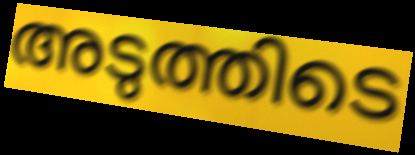
അടുത്തിടെ